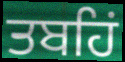
ਤਬਹਿਂ